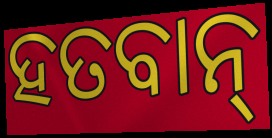
ହତବାନ୍